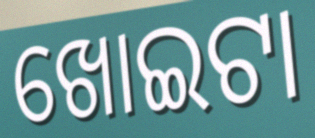
ଖୋଇଟା